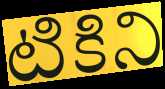
టికిని